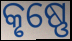
କୃଷ୍ଣେ